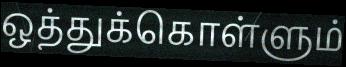
ஒத்துக்கொள்ளும்